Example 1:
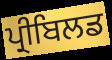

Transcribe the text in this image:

ਪ੍ਰੀਬਿਲਡ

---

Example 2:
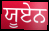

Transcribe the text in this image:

ਯੂਏਨ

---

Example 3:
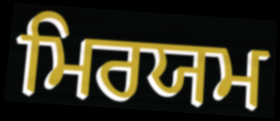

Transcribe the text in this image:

ਮਿਰਯਮ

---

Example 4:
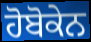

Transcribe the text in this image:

ਹੋਬੋਕੇਨ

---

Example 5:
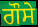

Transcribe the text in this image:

ਗੌਸੇ